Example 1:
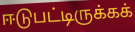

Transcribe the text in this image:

ஈடுபட்டிருக்கக்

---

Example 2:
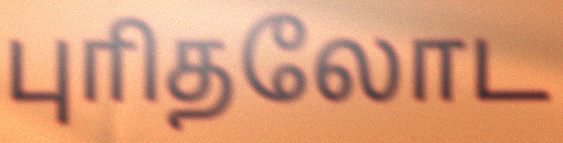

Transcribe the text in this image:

புரிதலோட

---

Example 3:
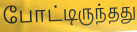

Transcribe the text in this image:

போட்டிருந்தது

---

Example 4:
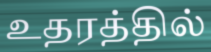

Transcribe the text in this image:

உதரத்தில்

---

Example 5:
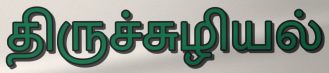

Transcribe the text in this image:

திருச்சுழியல்